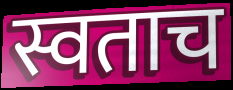
स्वताच